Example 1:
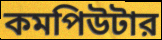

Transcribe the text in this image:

কমপিউটার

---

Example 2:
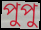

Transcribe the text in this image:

পুপু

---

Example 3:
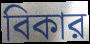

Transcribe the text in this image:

বিকার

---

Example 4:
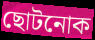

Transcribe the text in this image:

ছোটনোক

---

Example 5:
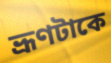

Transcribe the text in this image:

ভ্রূণটাকে